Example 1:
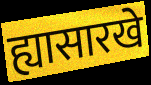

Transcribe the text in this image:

ह्यासारखे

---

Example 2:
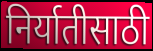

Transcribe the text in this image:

निर्यातीसाठी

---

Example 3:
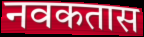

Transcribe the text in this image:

नवकतास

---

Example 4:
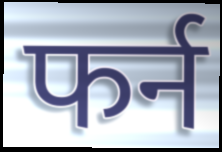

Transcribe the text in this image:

फर्न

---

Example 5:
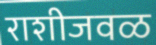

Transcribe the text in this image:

राशीजवळ